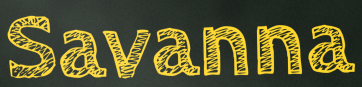
Savanna